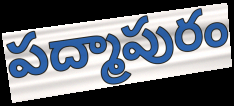
పద్మాపురం